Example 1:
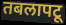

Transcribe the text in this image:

तबलापटू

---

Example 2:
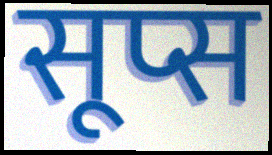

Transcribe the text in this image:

सूप्स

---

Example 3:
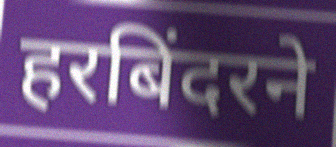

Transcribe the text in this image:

हरबिंदरने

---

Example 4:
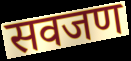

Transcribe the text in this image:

सवजण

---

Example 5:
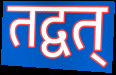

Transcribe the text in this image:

तद्वत्